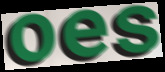
oes